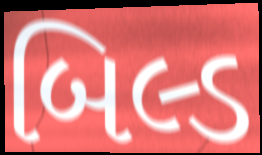
બિલ્ડ